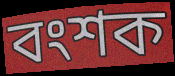
বংশক